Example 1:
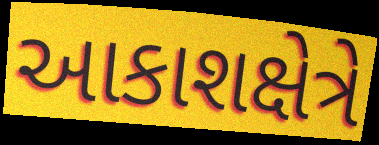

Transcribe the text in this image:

આકાશક્ષેત્રે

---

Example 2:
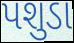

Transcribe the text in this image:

પશુડા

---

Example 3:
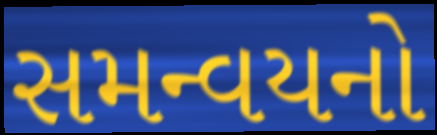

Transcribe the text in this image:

સમન્વયનો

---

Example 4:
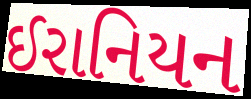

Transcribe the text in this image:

ઈરાનિયન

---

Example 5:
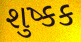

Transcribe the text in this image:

શુષ્કક